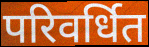
परिवर्धित